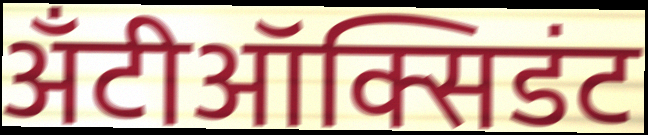
अँटीऑक्सिडंट